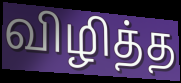
விழித்த